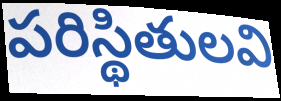
పరిస్థితులవి